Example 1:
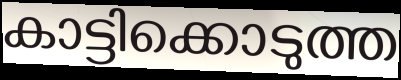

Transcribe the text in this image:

കാട്ടിക്കൊടുത്ത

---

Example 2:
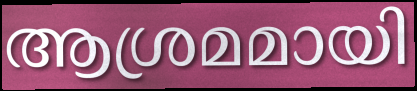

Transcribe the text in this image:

ആശ്രമമായി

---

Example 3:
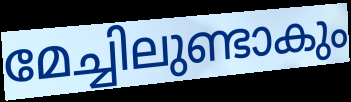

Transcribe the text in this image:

മേച്ചിലുണ്ടാകും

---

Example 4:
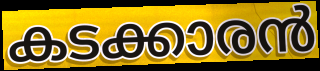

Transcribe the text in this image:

കടക്കാരൻ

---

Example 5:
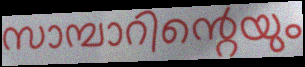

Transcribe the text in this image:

സാമ്പാറിന്റെയും